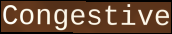
Congestive